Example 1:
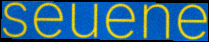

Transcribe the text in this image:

seuene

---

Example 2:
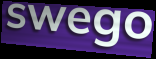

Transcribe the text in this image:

swego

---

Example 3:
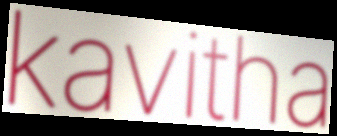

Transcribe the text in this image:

kavitha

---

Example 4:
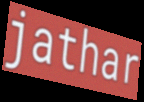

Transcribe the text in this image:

jathar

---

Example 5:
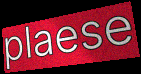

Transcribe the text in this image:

plaese